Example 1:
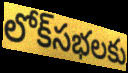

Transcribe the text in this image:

లోక్‌సభలకు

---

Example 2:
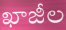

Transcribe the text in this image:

ఖాజీల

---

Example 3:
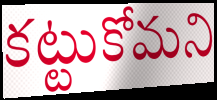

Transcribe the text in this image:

కట్టుకోమని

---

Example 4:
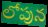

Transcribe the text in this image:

లోపున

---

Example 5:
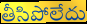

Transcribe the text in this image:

తీసిపోలేదు